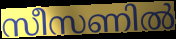
സീസണിൽ